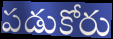
పడుకోరు